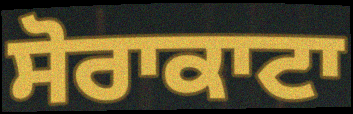
ਸੋਰਾਕਾਟਾ